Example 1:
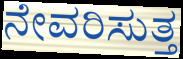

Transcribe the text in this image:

ನೇವರಿಸುತ್ತ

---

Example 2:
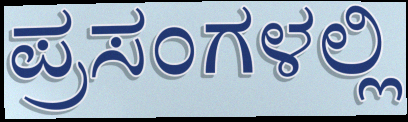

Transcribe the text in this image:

ಪ್ರಸಂಗಳಲ್ಲಿ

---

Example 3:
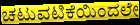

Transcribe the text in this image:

ಚಟುವಟಿಕೆಯಿಂದಲೇ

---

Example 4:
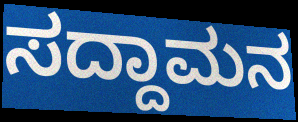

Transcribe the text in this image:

ಸದ್ದಾಮನ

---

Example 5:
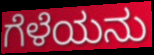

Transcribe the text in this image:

ಗೆಳೆಯನು